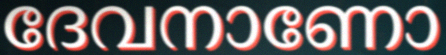
ദേവനാണോ